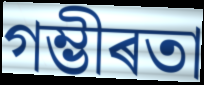
গম্ভীৰতা